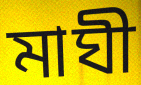
মাঘী